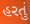
હરતું